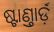
ଷ୍ଟାଣ୍ତାର୍ଡ଼